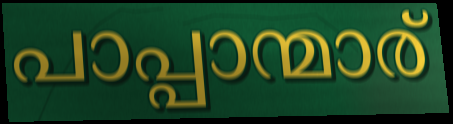
പാപ്പാന്മാര്